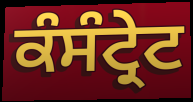
ਕੰਸੰਟ੍ਰੇਟ